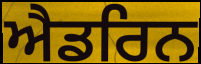
ਐਡਰਿਨ